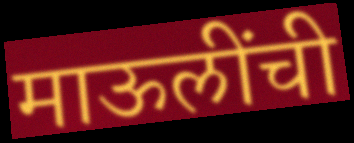
माऊलींची